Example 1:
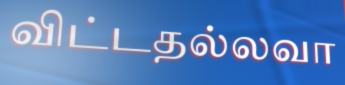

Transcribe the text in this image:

விட்டதல்லவா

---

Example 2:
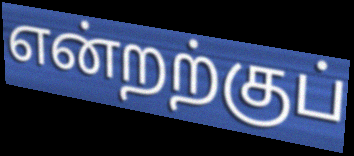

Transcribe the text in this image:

என்றற்குப்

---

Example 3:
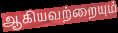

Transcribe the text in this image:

ஆகியவற்றையும்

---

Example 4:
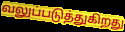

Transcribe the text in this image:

வலுப்படுத்துகிறது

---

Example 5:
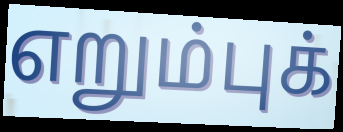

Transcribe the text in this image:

எறும்புக்